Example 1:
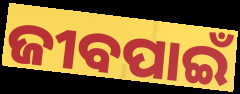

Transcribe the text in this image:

ଜୀବପାଇଁ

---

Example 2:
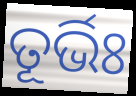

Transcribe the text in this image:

ତୂର୍ଭିଃ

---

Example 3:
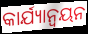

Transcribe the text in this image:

କାର୍ଯ୍ୟାନ୍ବୟନ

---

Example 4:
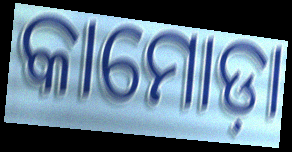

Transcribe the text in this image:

କାମୋଡ଼ା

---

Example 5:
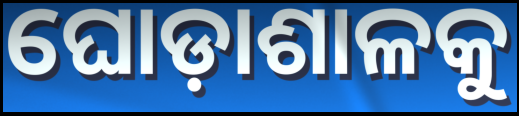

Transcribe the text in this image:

ଘୋଡ଼ାଶାଳକୁ